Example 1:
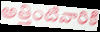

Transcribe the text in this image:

అత్తింటివారికి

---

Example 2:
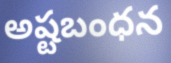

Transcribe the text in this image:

అష్టబంధన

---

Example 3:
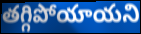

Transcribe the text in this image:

తగ్గిపోయాయని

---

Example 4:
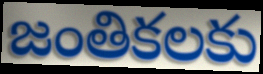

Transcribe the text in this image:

జంతికలకు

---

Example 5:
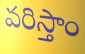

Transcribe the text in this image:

వరిస్తాం